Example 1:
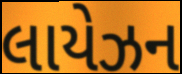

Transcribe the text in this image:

લાયેઝન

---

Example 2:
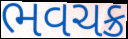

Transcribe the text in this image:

ભવચક્ર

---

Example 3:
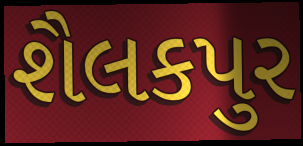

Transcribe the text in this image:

શૈલકપુર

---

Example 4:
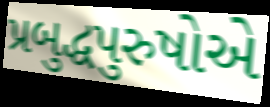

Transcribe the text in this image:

પ્રબુદ્ધપુરુષોએ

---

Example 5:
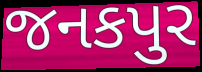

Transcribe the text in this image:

જનકપુર